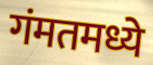
गंमतमध्ये